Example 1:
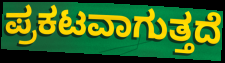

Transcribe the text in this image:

ಪ್ರಕಟವಾಗುತ್ತದೆ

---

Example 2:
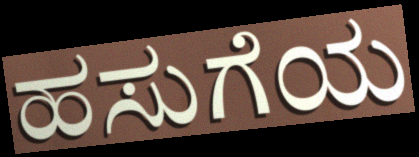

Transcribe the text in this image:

ಹಸುಗೆಯ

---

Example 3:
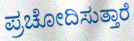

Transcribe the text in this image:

ಪ್ರಚೋದಿಸುತ್ತಾರೆ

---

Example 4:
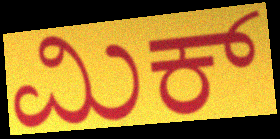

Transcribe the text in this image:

ಮಿಕ್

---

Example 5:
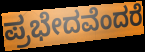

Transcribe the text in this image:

ಪ್ರಭೇದವೆಂದರೆ